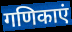
गणिकाएं